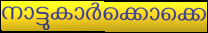
നാട്ടുകാർക്കൊക്കെ